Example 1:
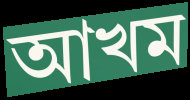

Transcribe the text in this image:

আখম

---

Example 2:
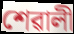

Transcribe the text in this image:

শেৱালী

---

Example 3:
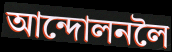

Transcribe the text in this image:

আন্দোলনলৈ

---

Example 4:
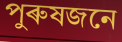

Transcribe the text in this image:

পুৰুষজনে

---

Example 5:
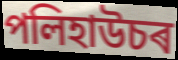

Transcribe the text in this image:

পলিহাউচৰ